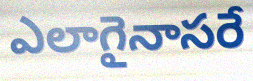
ఎలాగైనాసరే